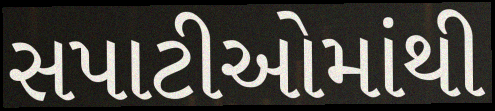
સપાટીઓમાંથી